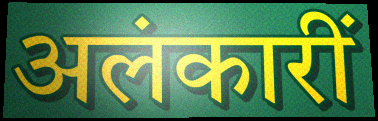
अलंकारीं